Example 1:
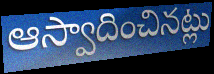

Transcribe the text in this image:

ఆస్వాదించినట్లు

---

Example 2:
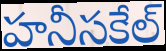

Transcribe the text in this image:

హనీసకేల్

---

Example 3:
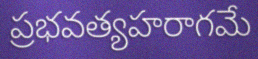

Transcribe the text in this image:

ప్రభవత్యహరాగమే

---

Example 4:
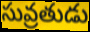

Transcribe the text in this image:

సువ్రతుడు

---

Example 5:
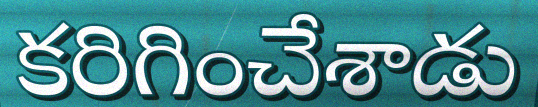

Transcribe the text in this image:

కరిగించేశాడు